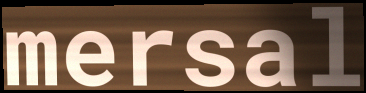
mersal